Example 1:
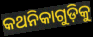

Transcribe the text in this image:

କଥନିକାଗୁଡ଼ିକୁ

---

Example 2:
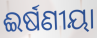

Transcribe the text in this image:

ଈର୍ଷଣୀୟା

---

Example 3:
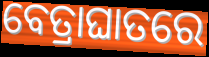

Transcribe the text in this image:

ବେତ୍ରାଘାତରେ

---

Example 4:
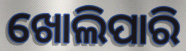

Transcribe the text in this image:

ଖୋଲିପାରି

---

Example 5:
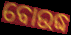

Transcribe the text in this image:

ବୋଉଦ୍ଧ